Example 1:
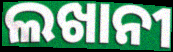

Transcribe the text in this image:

ଲଖାନୀ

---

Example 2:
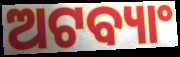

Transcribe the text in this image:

ଅଟବ୍ୟାଂ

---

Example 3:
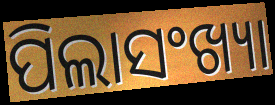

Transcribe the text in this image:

ପିଲାସଂଖ୍ୟା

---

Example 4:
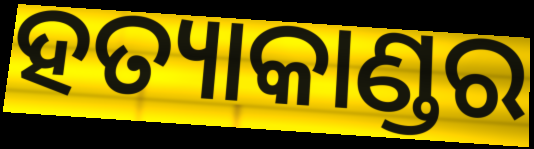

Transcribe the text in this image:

ହତ୍ୟାକାଣ୍ଡର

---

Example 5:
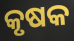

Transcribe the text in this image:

କୃଷକ